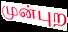
முன்புற